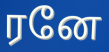
ரனே